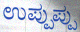
ಉಪ್ಪುಪ್ಪು